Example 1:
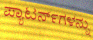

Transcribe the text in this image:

ಪ್ಯಾಟರ್ನ್‌ಗಳನ್ನು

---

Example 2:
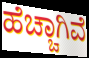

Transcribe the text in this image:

ಹೆಚ್ಚಾಗಿವೆ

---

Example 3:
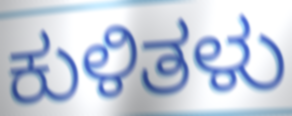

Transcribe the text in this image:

ಕುಳಿತಳು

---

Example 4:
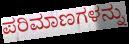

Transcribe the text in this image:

ಪರಿಮಾಣಗಳನ್ನು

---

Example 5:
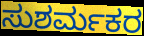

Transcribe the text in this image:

ಸುಶರ್ಮಕರ